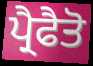
ਪ੍ਰੈਫੈਤੋ